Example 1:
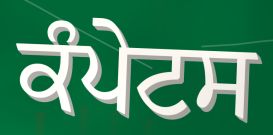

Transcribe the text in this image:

ਕੰਪੇਟਸ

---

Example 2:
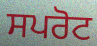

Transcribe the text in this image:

ਸਪਰੋਟ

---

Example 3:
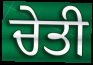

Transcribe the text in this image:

ਚੇਤੀ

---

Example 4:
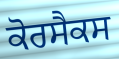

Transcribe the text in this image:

ਕੋਰਸੈਕਸ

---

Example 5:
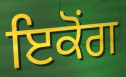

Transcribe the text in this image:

ਇਕੋਂਗ